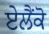
ਏਲੈਂਕੋ